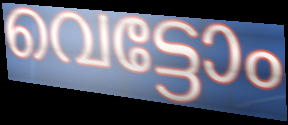
വെട്ടോം